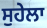
ਸੁਹੇਲਾ